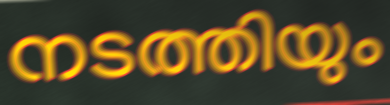
നടത്തിയും